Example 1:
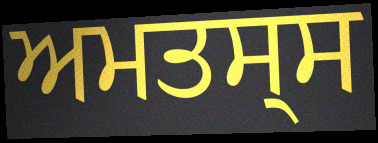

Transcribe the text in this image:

ਅਮਤਸ੍ਸ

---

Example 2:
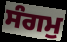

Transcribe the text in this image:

ਸੰਗਮੁ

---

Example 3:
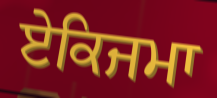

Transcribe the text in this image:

ਏਕਿਜਮਾ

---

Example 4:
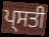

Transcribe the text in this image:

ਪ੍ਸਤੀ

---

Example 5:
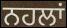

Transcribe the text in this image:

ਨਹਲਾਂ